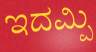
ಇದಮ್ಪಿ